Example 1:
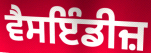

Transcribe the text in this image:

ਵੈਸਇੰਡੀਜ਼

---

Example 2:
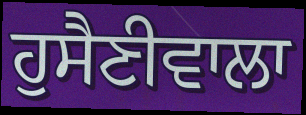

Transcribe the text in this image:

ਹੁਸੈਣੀਵਾਲਾ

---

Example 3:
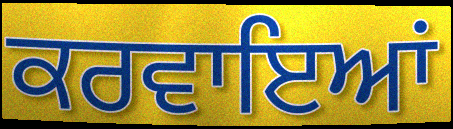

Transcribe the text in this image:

ਕਰਵਾਇਆਂ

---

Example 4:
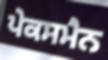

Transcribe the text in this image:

ਪੇਕਸਮੈਨ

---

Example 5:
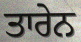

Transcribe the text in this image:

ਤਾਰੇਨ